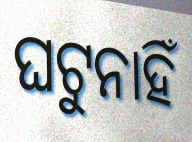
ଘଟୁନାହିଁ